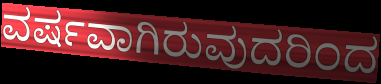
ವರ್ಷವಾಗಿರುವುದರಿಂದ